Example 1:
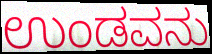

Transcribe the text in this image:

ಉಂಡವನು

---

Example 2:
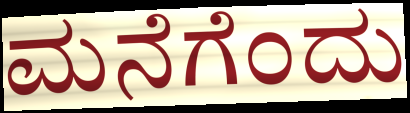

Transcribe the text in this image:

ಮನೆಗೆಂದು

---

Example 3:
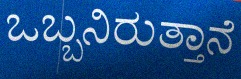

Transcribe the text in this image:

ಒಬ್ಬನಿರುತ್ತಾನೆ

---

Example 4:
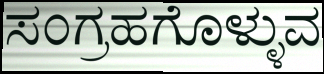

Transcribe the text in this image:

ಸಂಗ್ರಹಗೊಳ್ಳುವ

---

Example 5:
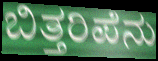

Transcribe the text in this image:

ಬಿತ್ತರಿಪೆನು